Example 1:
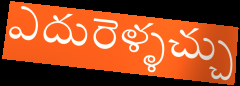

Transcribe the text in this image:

ఎదురెళ్ళచ్చు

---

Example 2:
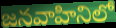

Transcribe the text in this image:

జనవాహినిలో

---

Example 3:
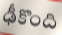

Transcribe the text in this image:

ఢీకొంది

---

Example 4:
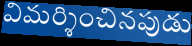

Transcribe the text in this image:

విమర్శించినపుడు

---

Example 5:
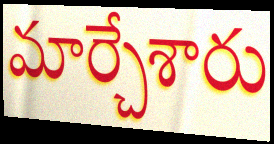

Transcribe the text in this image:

మార్చేశారు